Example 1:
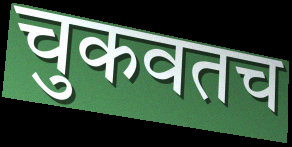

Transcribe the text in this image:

चुकवतच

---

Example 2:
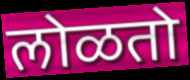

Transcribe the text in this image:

लोळतो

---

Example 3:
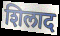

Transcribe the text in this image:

शिलाद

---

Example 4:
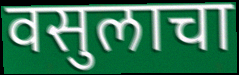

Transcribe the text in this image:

वसुलाचा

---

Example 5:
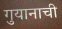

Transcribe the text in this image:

गुयानाची